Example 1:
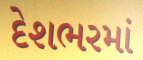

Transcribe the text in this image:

દેશભરમાં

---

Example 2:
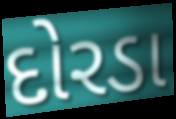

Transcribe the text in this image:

દોરડા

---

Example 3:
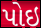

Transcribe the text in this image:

પોઇ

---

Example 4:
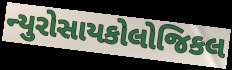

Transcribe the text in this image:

ન્યુરોસાયકોલોજિકલ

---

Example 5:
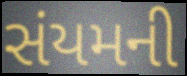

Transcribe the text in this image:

સંયમની